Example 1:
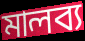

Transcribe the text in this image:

মালব্য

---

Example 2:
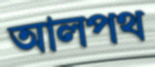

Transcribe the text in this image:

আলপথ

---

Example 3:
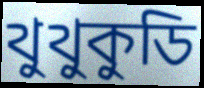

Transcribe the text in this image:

থুথুকুডি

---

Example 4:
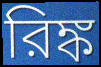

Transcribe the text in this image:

রিঙ্ক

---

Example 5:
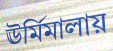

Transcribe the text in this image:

ঊর্মিমালায়